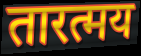
तारत्मय